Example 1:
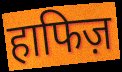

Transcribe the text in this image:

हाफिज़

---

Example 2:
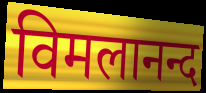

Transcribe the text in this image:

विमलानन्द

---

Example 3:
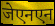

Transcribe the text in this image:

जेएनएन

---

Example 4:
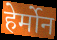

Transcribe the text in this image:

हेर्मोन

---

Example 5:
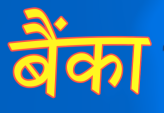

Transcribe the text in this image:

बैंका